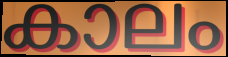
കാലം